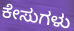
ಕೇಸುಗಳು